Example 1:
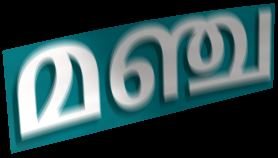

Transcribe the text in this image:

മഞ്ച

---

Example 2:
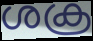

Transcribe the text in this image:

ശക്ര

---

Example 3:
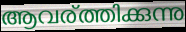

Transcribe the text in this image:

ആവര്ത്തിക്കുന്നു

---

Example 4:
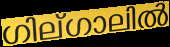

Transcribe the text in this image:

ഗില്ഗാലിൽ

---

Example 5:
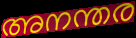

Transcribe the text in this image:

അനന്തര